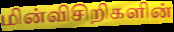
மின்விசிறிகளின்